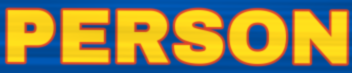
PERSON